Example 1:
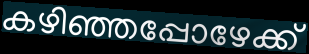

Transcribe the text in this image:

കഴിഞ്ഞപ്പോഴേക്ക്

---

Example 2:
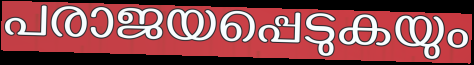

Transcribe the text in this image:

പരാജയപ്പെടുകയും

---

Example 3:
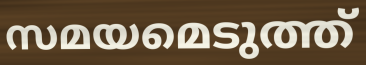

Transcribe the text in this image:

സമയമെടുത്ത്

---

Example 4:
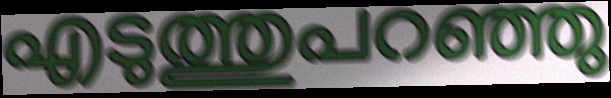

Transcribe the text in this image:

എടുത്തുപറഞ്ഞു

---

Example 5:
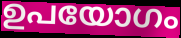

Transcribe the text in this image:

ഉപയോഗം